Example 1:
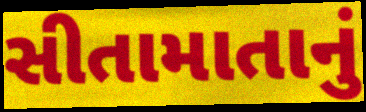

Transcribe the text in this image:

સીતામાતાનું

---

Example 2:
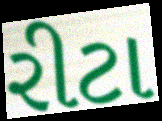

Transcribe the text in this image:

રીટા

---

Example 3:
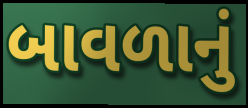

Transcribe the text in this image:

બાવળાનું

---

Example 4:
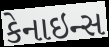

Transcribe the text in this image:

કેનાઇન્સ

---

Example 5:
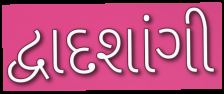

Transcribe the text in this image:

દ્વાદશાંગી